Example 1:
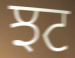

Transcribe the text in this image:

ਝਟ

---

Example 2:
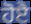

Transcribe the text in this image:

ਹੋੲੈ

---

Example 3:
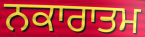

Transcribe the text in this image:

ਨਕਾਰਾਤਮ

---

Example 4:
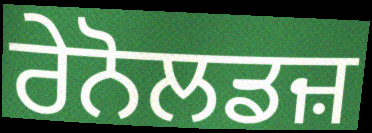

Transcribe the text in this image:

ਰੇਨੋਲਡਜ਼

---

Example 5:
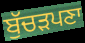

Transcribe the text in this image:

ਬੁੱਚੜਪਣਾ